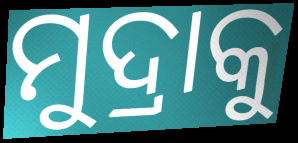
ମୁଦ୍ରାକୁ